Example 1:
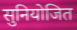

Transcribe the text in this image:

सुनियोजित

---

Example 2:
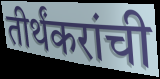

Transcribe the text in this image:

तीर्थंकरांची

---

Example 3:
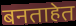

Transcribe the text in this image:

बनताहेत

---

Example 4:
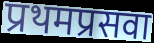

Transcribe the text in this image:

प्रथमप्रसवा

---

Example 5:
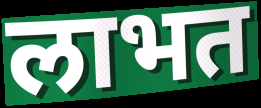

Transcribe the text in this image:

लाभत